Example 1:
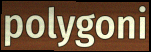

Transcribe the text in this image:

polygoni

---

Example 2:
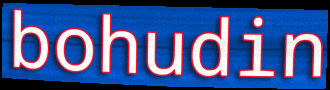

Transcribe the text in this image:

bohudin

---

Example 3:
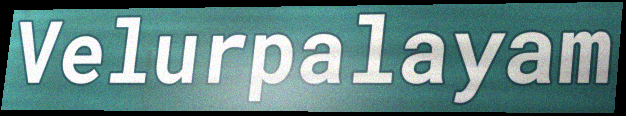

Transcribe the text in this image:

Velurpalayam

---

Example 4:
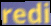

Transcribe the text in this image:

redi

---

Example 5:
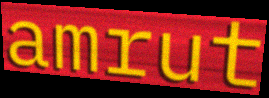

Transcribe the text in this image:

amrut